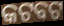
କଟବଟ